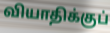
வியாதிக்குப்